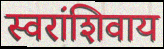
स्वरांशिवाय